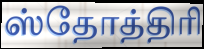
ஸ்தோத்திரி